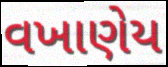
વખાણેય